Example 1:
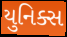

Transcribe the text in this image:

યુનિક્સ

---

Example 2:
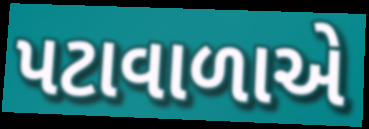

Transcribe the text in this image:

પટાવાળાએ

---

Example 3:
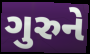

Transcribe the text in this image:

ગુરુને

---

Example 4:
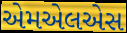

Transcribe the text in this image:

એમએલએસ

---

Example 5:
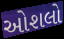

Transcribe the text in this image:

ઓશલો